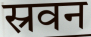
स्रवन